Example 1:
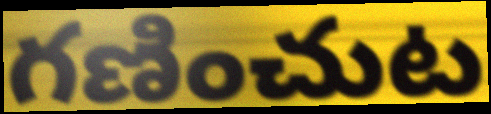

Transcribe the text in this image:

గణించుట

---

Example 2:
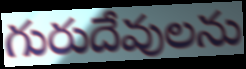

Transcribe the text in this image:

గురుదేవులను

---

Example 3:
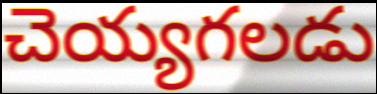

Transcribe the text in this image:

చెయ్యగలడు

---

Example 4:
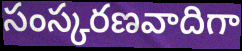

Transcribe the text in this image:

సంస్కరణవాదిగా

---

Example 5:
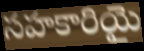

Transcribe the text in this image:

సహకారియై